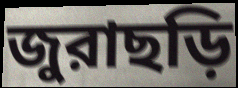
জুরাছড়ি